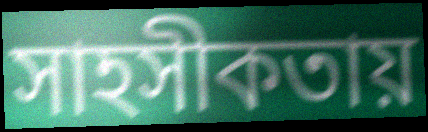
সাহসীকতায়